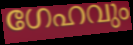
ഗേഹവും